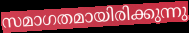
സമാഗതമായിരിക്കുന്നു